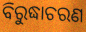
ବିରୁଦ୍ଧାଚରଣ